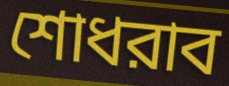
শোধরাব